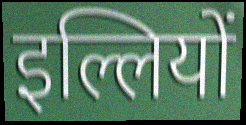
इल्लियों